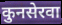
कुनसेरवा